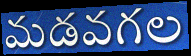
మడవగల